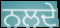
ਨਲਦੇ